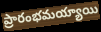
ప్రారంభమయ్యాయి